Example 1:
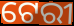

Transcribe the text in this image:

ଟେରୀ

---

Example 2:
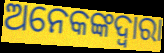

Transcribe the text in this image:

ଅନେକଙ୍କଦ୍ୱାରା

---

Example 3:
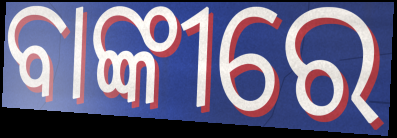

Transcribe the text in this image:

ବାଙ୍କୀରେ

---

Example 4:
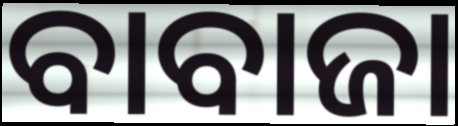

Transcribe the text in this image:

ବାବାଜା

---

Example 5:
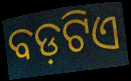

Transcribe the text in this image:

ବଡ଼ଟିଏ